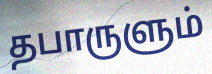
தபாருளும்